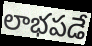
లాభపడే